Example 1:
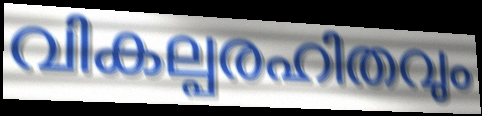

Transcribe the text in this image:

വികല്പരഹിതവും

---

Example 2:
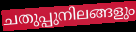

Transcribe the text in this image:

ചതുപ്പുനിലങ്ങളും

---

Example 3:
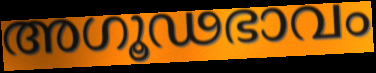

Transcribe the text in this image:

അഗൂഢഭാവം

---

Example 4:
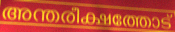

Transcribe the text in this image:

അന്തരീക്ഷത്തോട്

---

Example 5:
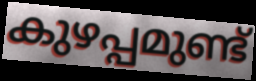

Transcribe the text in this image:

കുഴപ്പമുണ്ട്